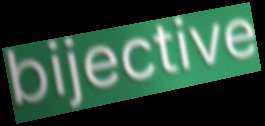
bijective